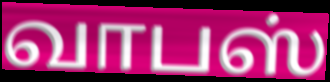
வாபஸ்